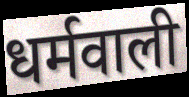
धर्मवाली